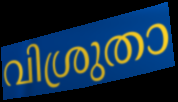
വിശ്രുതാ